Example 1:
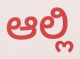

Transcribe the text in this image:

ಆಲ್ಲಿ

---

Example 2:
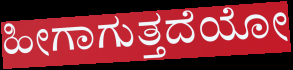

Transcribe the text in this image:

ಹೀಗಾಗುತ್ತದೆಯೋ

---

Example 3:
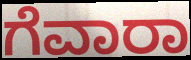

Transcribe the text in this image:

ಗೆವಾರಾ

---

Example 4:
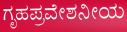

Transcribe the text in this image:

ಗೃಹಪ್ರವೇಶನೀಯ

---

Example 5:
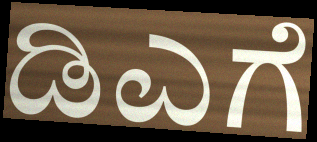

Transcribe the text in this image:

ಡಿಎಗೆ